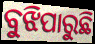
ବୁଝିପାରୁଛି